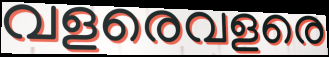
വളരെവളരെ